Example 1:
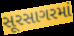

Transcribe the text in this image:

સૂરસાગરમાં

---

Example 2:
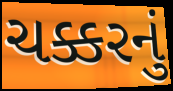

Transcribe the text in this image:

ચક્કરનું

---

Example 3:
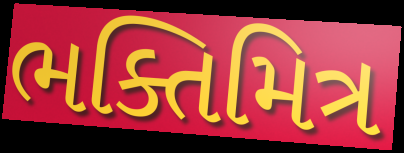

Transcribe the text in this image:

ભક્તિમિત્ર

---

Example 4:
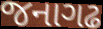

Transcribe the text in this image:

જનાગઢ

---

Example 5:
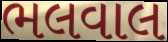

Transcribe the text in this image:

ભલવાલ